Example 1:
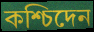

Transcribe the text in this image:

কশ্চিদেন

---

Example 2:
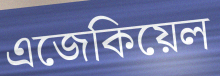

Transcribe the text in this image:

এজেকিয়েল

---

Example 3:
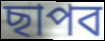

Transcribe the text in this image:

ছাপব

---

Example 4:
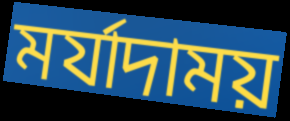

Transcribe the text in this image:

মর্যাদাময়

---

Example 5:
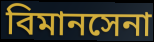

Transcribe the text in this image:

বিমানসেনা